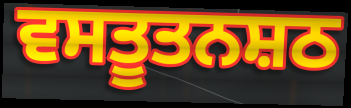
ਵਸਤੂਤਨਸ਼ਠ